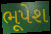
ભૂપેશ